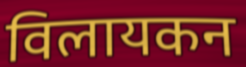
विलायकन